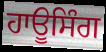
ਹਾਊਸਿੰਗ